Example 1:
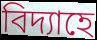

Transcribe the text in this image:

বিদ্যাহে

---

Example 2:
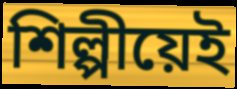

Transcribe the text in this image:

শিল্পীয়েই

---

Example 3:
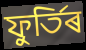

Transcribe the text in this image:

ফুৰ্তিৰ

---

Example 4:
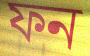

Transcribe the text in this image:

ফন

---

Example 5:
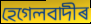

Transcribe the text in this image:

হেগেলবাদীৰ